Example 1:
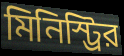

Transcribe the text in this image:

মিনিস্ট্রির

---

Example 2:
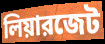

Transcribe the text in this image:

লিয়ারজেট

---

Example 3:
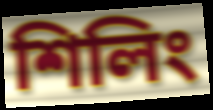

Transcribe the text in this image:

শিলিং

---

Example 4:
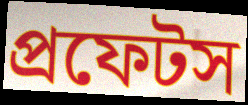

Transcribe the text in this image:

প্রফেটস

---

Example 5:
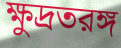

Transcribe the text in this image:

ক্ষুদ্রতরঙ্গ